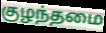
குழந்தமை